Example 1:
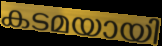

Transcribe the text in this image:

കടമയായി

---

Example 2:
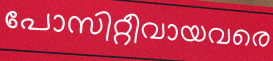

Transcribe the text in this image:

പോസിറ്റീവായവരെ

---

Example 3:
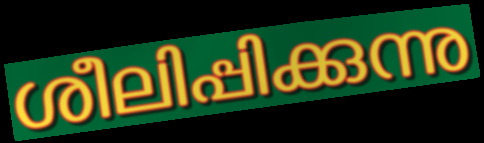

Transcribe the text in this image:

ശീലിപ്പിക്കുന്നു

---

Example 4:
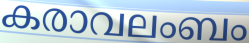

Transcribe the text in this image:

കരാവലംബം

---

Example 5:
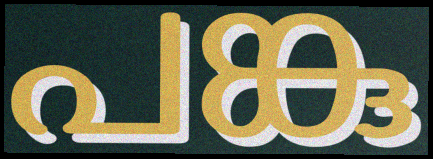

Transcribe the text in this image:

പങ്കു